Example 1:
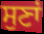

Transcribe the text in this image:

ਸੁਣਾਂ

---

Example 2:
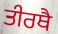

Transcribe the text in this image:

ਤੀਰਥੈ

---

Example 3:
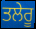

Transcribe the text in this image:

ਤਲੇਰੂ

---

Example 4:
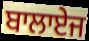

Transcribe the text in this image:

ਬਾਲਾਏਜ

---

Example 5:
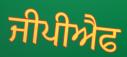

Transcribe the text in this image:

ਜੀਪੀਐਫ